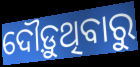
ଦୌଡ଼ୁଥିବାରୁ